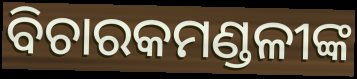
ବିଚାରକମଣ୍ଡଳୀଙ୍କ